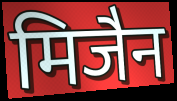
मिजैन